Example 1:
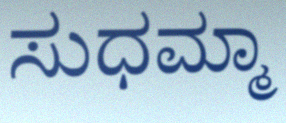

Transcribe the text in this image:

ಸುಧಮ್ಮಾ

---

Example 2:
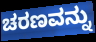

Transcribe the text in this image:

ಚರಣವನ್ನು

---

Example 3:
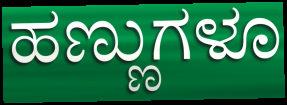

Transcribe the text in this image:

ಹಣ್ಣುಗಳೂ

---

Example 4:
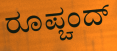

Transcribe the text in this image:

ರೂಪ್ಚಂದ್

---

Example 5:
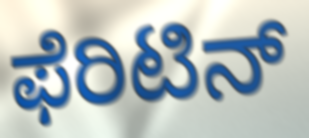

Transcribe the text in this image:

ಫೆರಿಟಿನ್